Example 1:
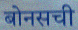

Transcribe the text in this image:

बोनसची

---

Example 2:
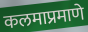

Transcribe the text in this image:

कलमाप्रमाणे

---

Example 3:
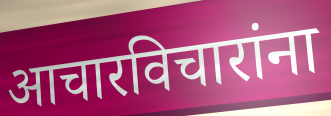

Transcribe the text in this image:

आचारविचारांना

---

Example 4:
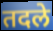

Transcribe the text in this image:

तदले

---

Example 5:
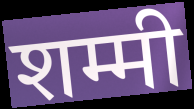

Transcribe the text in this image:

शम्मी